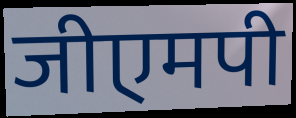
जीएमपी